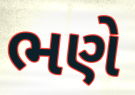
ભણે